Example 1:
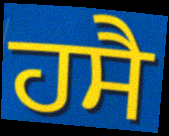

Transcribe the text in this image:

ਹਸੈ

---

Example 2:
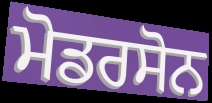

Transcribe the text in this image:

ਮੋਡਰਸੋਨ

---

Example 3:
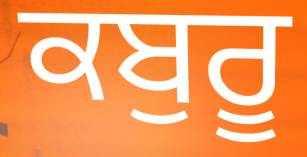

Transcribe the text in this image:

ਕਬੁਰੂ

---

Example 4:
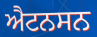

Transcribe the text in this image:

ਐਟਨਸਨ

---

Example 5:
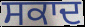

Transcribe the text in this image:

ਸਕਾਦ